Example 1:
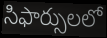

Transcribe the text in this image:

సిఫార్సులలో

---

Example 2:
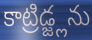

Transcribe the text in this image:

కాట్రిడ్జ్లను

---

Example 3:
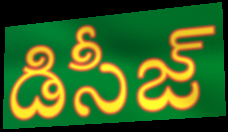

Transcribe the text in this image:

డిసీజ్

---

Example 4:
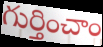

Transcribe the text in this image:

గుర్తించాం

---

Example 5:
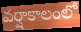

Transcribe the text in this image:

వర్షాకాలంలో